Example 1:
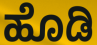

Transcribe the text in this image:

ಹೊಡಿ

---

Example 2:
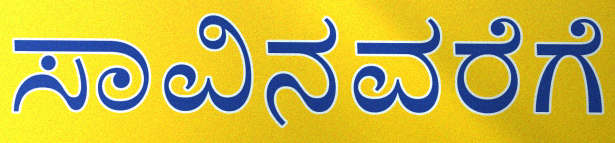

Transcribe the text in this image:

ಸಾವಿನವರೆಗೆ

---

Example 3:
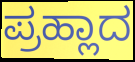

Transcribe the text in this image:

ಪ್ರಹ್ಲಾದ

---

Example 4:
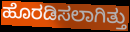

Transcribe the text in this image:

ಹೊರಡಿಸಲಾಗಿತ್ತು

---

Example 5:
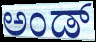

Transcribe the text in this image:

ಅಂಡ್